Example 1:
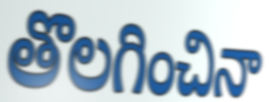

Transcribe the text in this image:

తొలగించినా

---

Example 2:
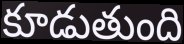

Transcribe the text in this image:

కూడుతుంది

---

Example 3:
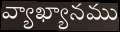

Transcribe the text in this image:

వ్యాఖ్యానము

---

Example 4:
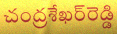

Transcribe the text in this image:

చంద్రశేఖర్‌రెడ్డి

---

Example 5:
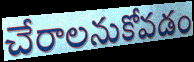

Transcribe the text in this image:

చేరాలనుకోవడం